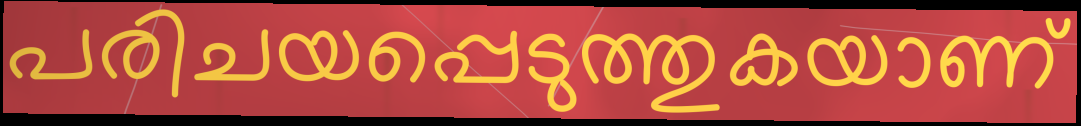
പരിചയപ്പെടുത്തുകയാണ്